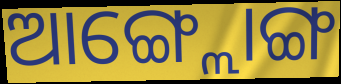
ଆଙ୍ଗ୍ଲୋଙ୍ଗ